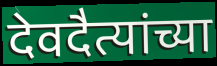
देवदैत्यांच्या